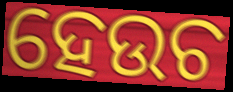
ହେଉଚ